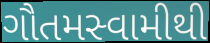
ગૌતમસ્વામીથી